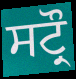
ਸਟ੍ਰੌ